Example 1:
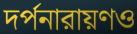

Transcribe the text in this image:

দর্পনারায়ণও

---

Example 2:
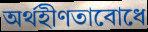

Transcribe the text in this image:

অর্থহীণতাবোধে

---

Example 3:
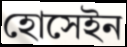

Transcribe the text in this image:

হোসেইন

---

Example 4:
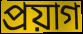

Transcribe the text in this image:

প্রয়াগ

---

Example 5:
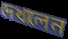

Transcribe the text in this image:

দেখালেন